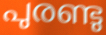
പുരണ്ടു